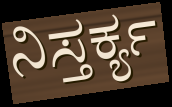
ನಿಸ್ತರ್ಕ್ಯ